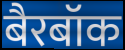
बैरबॉक